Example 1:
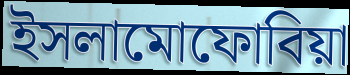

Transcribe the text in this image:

ইসলামোফোবিয়া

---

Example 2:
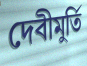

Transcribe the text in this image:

দেবীমুর্তি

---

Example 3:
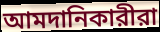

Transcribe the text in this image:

আমদানিকারীরা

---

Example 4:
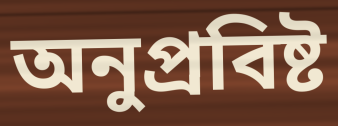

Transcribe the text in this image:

অনুপ্রবিষ্ট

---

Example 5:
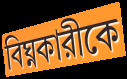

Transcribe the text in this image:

বিঘ্নকারীকে